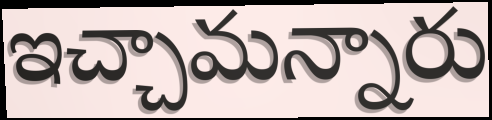
ఇచ్చామన్నారు